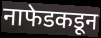
नाफेडकडून